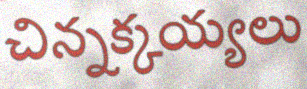
చిన్నక్కయ్యలు